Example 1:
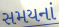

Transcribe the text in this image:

સમયનાં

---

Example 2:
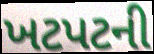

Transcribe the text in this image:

ખટપટની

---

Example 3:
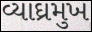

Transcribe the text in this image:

વ્યાઘ્રમુખ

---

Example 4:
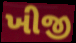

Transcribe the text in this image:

ખીજી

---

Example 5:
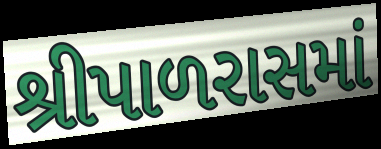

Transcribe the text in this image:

શ્રીપાળરાસમાં